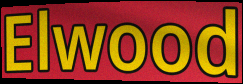
Elwood